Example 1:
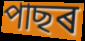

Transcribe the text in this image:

পাছৰ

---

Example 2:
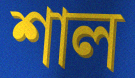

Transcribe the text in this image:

শাল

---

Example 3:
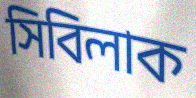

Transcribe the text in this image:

সিবিলাক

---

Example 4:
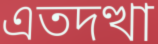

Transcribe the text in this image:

এতদত্থা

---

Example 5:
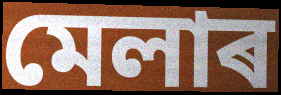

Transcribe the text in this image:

মেলাৰ